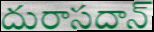
దురాసదాన్